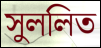
সুললিত